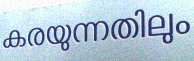
കരയുന്നതിലും